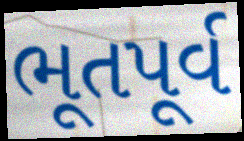
ભૂતપૂર્વ